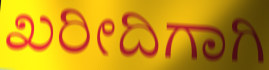
ಖರೀದಿಗಾಗಿ